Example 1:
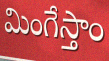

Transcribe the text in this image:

మింగేస్తాం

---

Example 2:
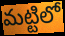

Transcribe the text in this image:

మట్టిలో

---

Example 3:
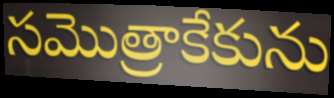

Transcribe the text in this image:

సమొత్రాకేకును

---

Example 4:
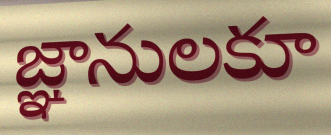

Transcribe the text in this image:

జ్ఞానులకూ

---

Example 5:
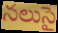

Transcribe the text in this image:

నలుసై